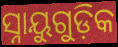
ସ୍ନାୟୁଗୁଡ଼ିକ